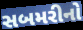
સબમરીનો